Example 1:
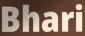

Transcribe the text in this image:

Bhari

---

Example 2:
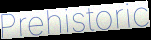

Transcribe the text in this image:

Prehistoric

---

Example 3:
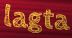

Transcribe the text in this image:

lagta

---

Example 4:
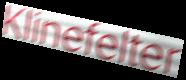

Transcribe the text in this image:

Klinefelter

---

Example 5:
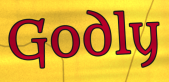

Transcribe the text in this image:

Godly